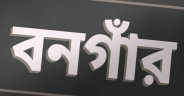
বনগাঁর